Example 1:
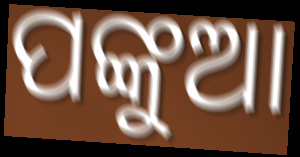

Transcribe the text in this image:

ପଙ୍କୁଆ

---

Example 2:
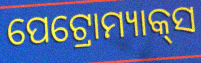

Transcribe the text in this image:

ପେଟ୍ରୋମ୍ୟାକ୍‌ସ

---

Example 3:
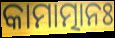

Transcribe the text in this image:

କାମାତ୍ମାନଃ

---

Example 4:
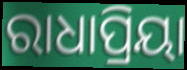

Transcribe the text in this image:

ରାଧାପ୍ରିୟା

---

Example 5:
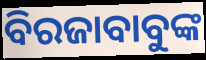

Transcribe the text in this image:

ବିରଜାବାବୁଙ୍କ